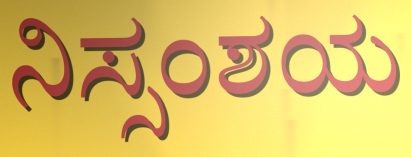
ನಿಸ್ಸಂಶಯ